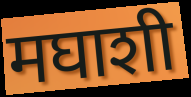
मघाशी